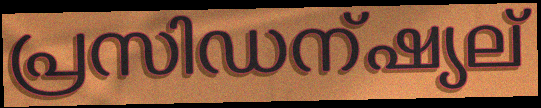
പ്രസിഡന്ഷ്യല്